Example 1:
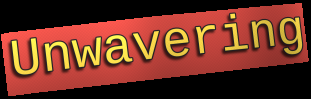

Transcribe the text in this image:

Unwavering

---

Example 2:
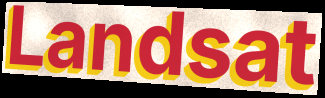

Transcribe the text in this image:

Landsat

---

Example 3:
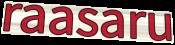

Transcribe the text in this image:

raasaru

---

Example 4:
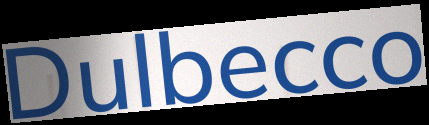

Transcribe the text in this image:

Dulbecco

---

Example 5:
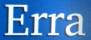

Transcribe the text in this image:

Erra